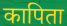
कापिता